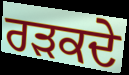
ਰੜਕਦੇ